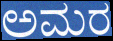
ಅಮರ